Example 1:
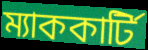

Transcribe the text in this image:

ম্যাককার্টি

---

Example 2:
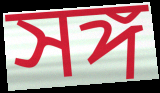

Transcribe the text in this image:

সঙ্গ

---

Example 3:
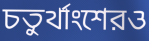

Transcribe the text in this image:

চতুর্থাংশেরও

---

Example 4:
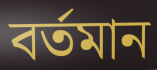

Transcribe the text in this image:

বর্তমান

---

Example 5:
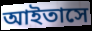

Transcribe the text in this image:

আইতাসে